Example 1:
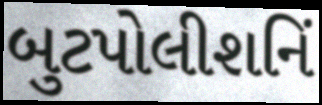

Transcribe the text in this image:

બુટપોલીશનિં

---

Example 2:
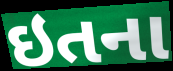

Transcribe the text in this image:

ઇતના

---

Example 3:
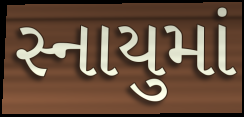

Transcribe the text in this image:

સ્નાયુમાં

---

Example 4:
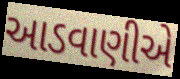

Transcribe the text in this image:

આડવાણીએ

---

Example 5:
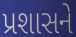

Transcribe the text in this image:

પ્રશાસને